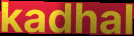
kadhal